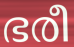
ഭരീ